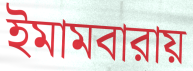
ইমামবারায়